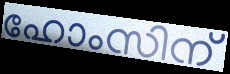
ഹോംസിന്